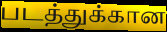
படத்துக்கான